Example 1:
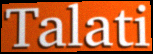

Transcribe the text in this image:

Talati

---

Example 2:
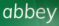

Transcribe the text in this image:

abbey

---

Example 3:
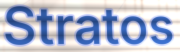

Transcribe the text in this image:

Stratos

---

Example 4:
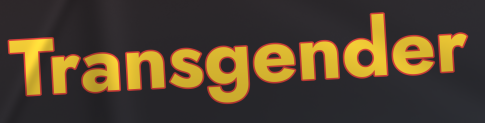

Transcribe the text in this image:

Transgender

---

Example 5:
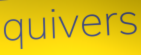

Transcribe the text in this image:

quivers